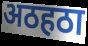
अठहठा